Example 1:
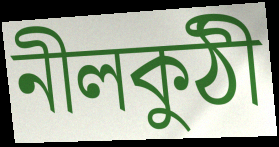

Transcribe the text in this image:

নীলকুঠী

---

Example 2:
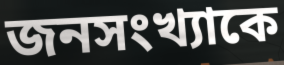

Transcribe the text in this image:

জনসংখ্যাকে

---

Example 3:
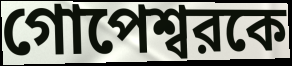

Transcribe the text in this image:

গোপেশ্বরকে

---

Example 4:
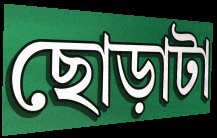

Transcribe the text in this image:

ছোড়াটা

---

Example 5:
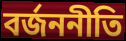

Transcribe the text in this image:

বর্জননীতি